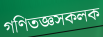
গণিতজ্ঞসকলক